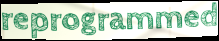
reprogrammed